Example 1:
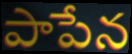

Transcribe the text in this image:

పాపేన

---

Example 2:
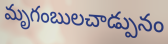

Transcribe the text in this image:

మృగంబులచాడ్పునం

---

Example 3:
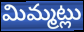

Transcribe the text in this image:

మిమ్మట్లు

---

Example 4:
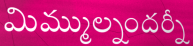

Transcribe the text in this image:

మిమ్ముల్నందర్నీ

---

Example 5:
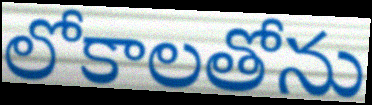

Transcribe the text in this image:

లోకాలతోను